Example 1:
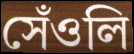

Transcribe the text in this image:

সেঁওলি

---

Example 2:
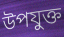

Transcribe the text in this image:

উপযুক্ত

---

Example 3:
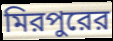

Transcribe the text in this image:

মিরপুরের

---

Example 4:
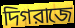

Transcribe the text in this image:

দিগরাজে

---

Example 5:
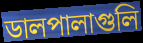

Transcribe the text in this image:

ডালপালাগুলি